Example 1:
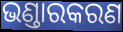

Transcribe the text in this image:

ଭଣ୍ଡାରକରଣ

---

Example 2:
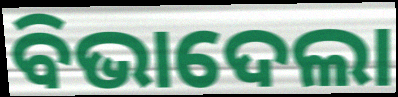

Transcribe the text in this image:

ବିଭାଦେଲା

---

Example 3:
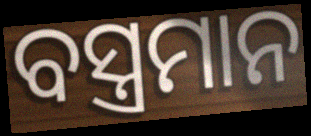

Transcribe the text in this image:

ବସ୍ତ୍ରମାନ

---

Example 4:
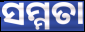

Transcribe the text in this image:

ସମ୍ମତା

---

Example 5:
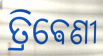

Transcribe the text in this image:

ତ୍ରିଵେଣୀ